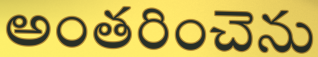
అంతరించెను